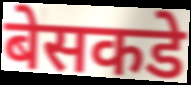
बेसकडे